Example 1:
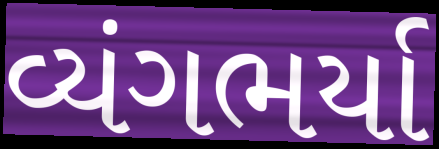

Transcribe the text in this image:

વ્યંગભર્યા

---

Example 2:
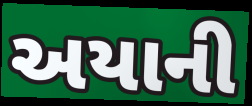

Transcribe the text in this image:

અયાની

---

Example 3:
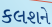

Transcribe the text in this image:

કલશને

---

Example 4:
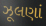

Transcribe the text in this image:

ઝૂલણાં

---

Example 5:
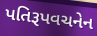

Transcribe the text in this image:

પતિરૂપવચનેન